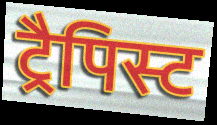
ट्रैपिस्ट